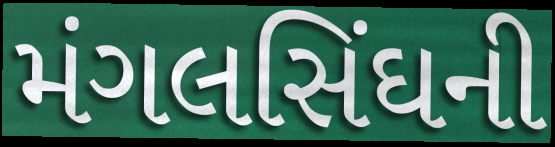
મંગલસિંઘની